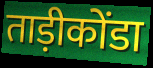
ताड़ीकोंडा